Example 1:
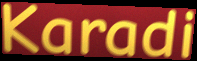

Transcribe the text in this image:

Karadi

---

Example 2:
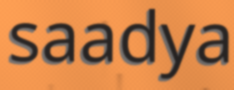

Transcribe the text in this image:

saadya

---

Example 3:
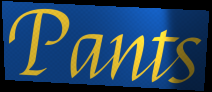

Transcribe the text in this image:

Pants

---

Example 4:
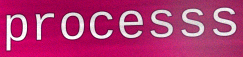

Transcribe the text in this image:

processs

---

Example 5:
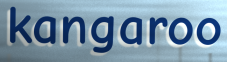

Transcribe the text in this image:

kangaroo